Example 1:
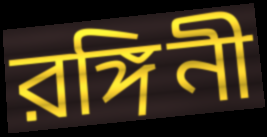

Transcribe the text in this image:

রঙ্গিনী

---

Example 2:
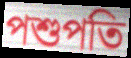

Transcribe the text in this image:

পশুপতি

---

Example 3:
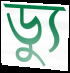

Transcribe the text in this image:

ড্যু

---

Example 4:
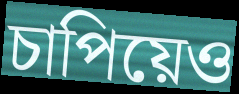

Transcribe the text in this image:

চাপিয়েও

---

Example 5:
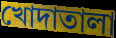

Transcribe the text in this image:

খোদাতালা